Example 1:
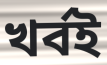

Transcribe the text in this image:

খর্বই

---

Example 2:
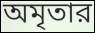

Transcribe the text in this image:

অমৃতার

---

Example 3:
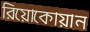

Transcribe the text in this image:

রিয়োকোয়ান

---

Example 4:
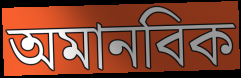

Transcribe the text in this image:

অমানবিক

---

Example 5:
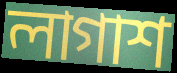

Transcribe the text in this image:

লাগাশ